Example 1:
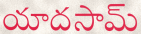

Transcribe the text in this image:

యాదసామ్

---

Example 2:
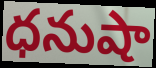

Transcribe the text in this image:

ధనుషా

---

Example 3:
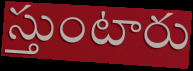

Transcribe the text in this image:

స్తుంటారు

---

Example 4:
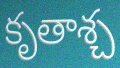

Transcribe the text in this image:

కృతాశ్చ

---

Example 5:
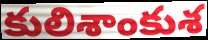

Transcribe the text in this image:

కులిశాంకుశ